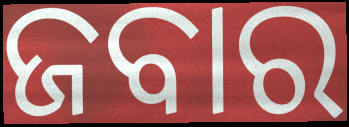
ଜବାର